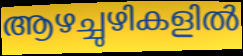
ആഴച്ചുഴികളിൽ